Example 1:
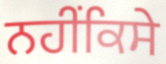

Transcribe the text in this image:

ਨਹੀਂਕਿਸੇ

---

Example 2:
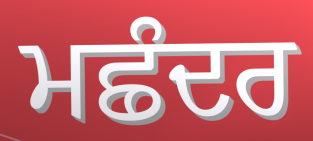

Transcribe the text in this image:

ਮਛੰਦਰ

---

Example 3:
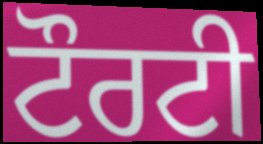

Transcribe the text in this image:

ਟੌਰਟੀ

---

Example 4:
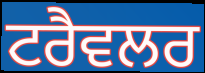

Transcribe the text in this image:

ਟਰੈਵਲਰ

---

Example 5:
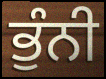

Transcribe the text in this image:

ਭੁੰਨੀ